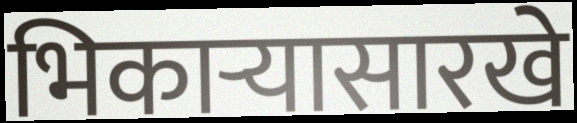
भिकार्‍यासारखे